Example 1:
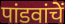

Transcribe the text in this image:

पांडवांचें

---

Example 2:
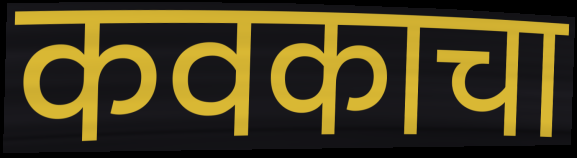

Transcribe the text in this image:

कवकाचा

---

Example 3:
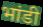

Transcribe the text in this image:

भांडी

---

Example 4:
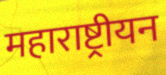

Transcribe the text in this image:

महाराष्ट्रीयन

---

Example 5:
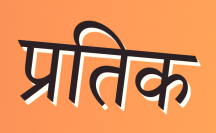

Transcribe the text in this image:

प्रतिक